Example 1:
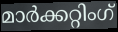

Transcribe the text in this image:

മാർക്കറ്റിംഗ്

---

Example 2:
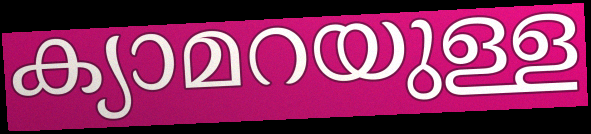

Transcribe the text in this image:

ക്യാമറയുള്ള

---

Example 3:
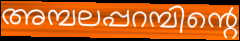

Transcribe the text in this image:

അമ്പലപ്പറമ്പിന്റെ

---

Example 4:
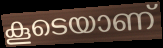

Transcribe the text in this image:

കൂടെയാണ്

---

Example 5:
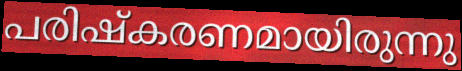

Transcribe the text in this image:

പരിഷ്കരണമായിരുന്നു